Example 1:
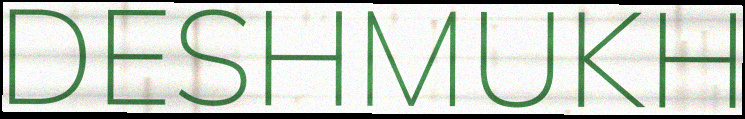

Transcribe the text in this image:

DESHMUKH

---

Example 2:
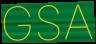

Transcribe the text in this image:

GSA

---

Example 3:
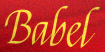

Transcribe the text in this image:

Babel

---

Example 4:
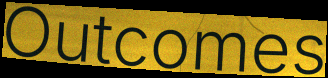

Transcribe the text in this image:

Outcomes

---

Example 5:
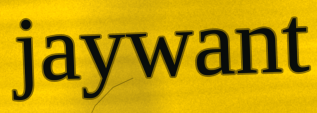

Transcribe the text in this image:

jaywant